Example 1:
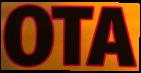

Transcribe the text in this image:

OTA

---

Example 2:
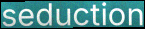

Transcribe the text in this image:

seduction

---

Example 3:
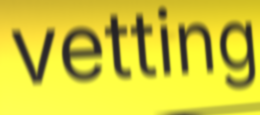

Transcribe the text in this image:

vetting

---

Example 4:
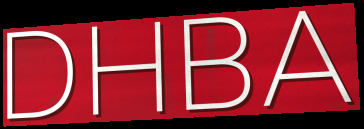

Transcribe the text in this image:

DHBA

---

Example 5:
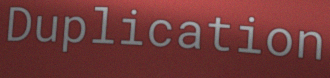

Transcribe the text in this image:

Duplication